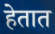
हेतात